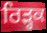
ਰਿੜ੍ਹਕ